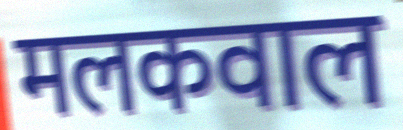
मलकवाल